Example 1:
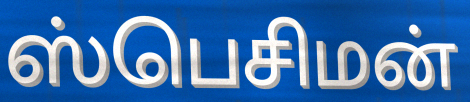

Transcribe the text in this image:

ஸ்பெசிமன்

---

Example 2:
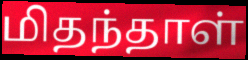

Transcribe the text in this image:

மிதந்தாள்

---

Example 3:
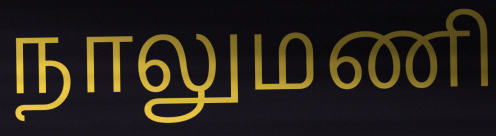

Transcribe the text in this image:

நாலுமணி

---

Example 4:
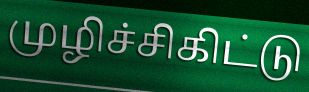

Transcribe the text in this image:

முழிச்சிகிட்டு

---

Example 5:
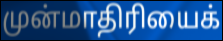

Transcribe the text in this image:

முன்மாதிரியைக்